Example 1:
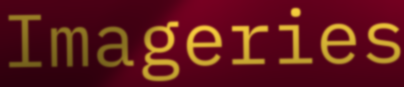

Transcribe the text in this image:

Imageries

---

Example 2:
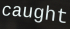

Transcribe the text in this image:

caught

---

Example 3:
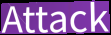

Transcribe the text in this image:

Attack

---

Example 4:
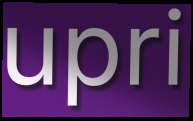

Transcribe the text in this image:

upri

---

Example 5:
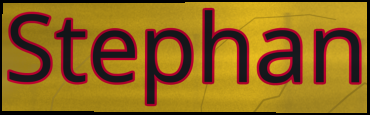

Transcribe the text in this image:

Stephan